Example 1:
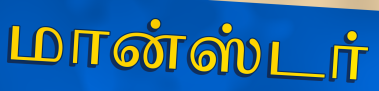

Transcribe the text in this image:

மான்ஸ்டர்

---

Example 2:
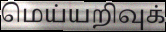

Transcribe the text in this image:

மெய்யறிவுக்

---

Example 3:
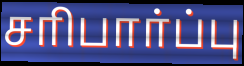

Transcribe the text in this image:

சரிபார்ப்பு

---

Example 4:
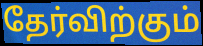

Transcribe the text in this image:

தேர்விற்கும்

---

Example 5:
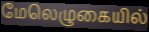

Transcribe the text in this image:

மேலெழுகையில்